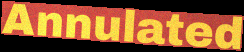
Annulated